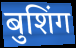
बुशिंग